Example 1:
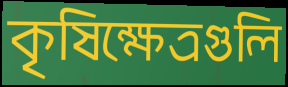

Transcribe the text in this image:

কৃষিক্ষেত্রগুলি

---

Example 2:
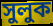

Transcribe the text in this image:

সুলুক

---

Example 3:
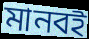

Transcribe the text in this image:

মানবই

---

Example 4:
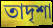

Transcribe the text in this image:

তাদৃশা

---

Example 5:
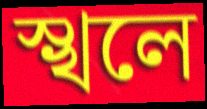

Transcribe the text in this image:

স্খলে